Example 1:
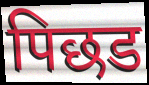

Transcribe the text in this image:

पिछड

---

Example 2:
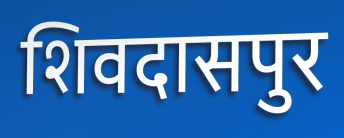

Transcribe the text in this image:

शिवदासपुर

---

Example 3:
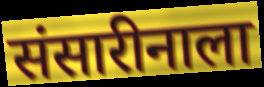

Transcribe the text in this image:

संसारीनाला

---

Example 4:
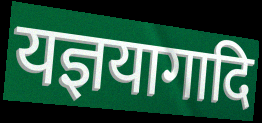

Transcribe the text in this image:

यज्ञयागादि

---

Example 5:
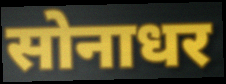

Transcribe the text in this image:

सोनाधर